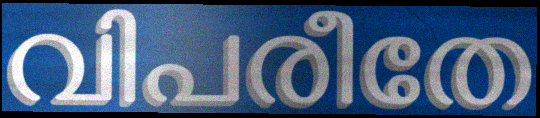
വിപരീതേ